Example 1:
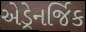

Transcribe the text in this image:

એડ્રેનર્જિક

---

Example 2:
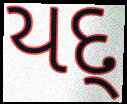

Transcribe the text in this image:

યદ્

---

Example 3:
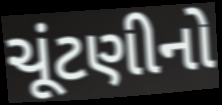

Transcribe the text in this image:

ચૂંટણીનો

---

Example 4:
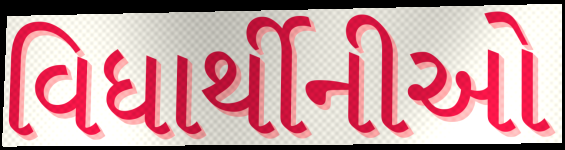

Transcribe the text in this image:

વિધાર્થીનીઓ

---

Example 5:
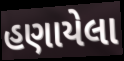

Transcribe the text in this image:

હણાયેલા